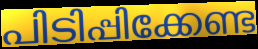
പിടിപ്പിക്കേണ്ട